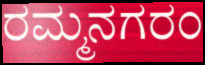
ರಮ್ಮನಗರಂ